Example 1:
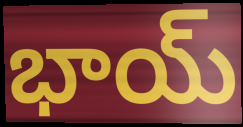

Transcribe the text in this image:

భాయ్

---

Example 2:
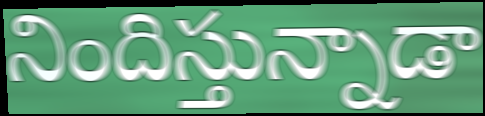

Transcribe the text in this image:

నిందిస్తున్నాడా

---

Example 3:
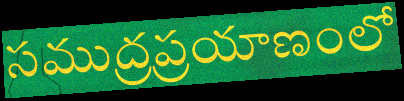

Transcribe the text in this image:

సముద్రప్రయాణంలో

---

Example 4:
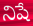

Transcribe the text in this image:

నిషే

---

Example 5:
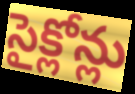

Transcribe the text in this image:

సైక్లోన్లు